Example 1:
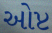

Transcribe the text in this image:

ઓપ્ટ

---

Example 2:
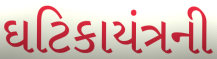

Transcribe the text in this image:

ઘટિકાયંત્રની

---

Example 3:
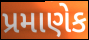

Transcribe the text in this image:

પ્રમાણેક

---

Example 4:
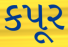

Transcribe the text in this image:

કપૂર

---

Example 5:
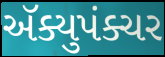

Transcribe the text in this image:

ઍક્યુપંક્ચર